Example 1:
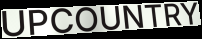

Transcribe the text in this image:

UPCOUNTRY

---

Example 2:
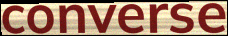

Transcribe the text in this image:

converse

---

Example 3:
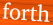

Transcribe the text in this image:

forth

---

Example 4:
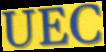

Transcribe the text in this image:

UEC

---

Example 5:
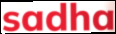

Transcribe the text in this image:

sadha